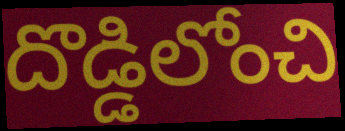
దొడ్డిలోంచి